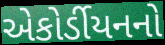
એકોર્ડીયનનો